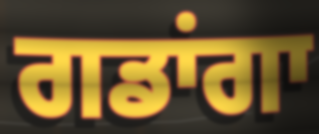
ਗਡਾਂਗਾ